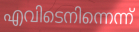
എവിടെനിന്നെന്ന്